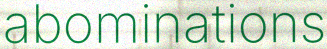
abominations